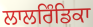
ਲਾਲਰਿੰਡਿਕਾ